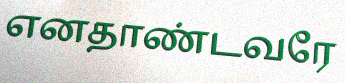
எனதாண்டவரே